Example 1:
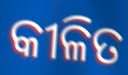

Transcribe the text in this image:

କୀଳିତ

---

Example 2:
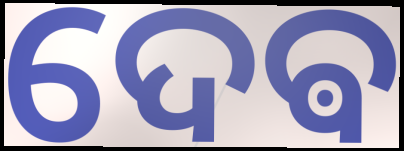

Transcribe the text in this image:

ଦେଵ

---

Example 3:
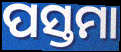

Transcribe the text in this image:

ପସ୍ତମା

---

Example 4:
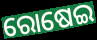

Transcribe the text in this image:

ରୋଷେଇ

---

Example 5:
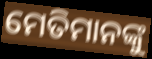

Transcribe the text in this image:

ମେତିମାନଙ୍କୁ